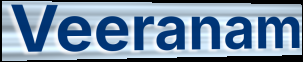
Veeranam